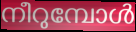
നീറുമ്പോൾ